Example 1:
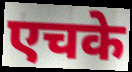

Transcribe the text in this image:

एचके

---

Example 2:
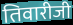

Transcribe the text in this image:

तिवारीजी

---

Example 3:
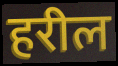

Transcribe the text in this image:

हरील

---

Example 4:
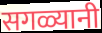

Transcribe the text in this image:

सगळ्यानी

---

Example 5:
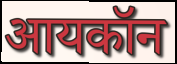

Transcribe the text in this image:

आयकॉन